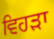
ਵਿਹੜਾ